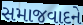
સમાજવાદને